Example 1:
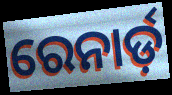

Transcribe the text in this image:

ରେନାର୍ଡ଼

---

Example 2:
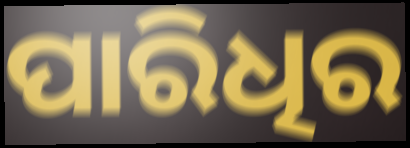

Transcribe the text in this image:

ପାରିଧିର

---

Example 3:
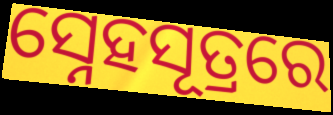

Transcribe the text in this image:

ସ୍ନେହସୂତ୍ରରେ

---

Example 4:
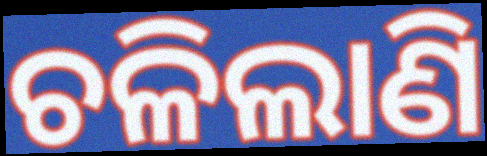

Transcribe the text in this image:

ଚଳିଲାଣି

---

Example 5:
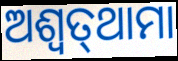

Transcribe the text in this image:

ଅଶ୍ଵତ୍‌ଥାମା